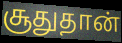
சூதுதான்